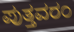
ಪುತ್ತವರಂ